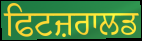
ਫਿਟਜ਼ਰਾਲਡ